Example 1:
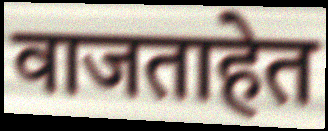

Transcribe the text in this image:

वाजताहेत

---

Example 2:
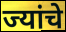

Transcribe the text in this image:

ज्यांचे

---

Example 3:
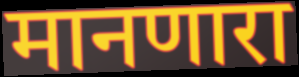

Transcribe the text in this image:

मानणारा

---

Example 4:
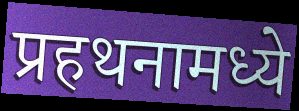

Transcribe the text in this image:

प्रहथनामध्ये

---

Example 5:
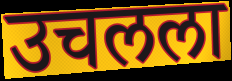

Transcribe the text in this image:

उचलला